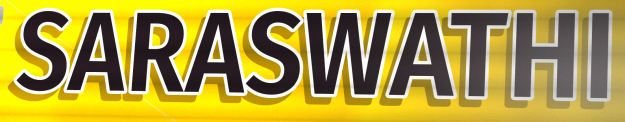
SARASWATHI